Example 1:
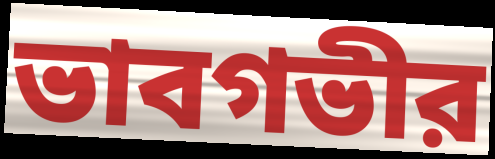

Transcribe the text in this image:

ভাবগভীর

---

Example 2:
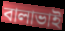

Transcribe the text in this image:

বালাভাই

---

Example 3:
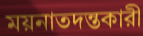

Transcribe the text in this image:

ময়নাতদন্তকারী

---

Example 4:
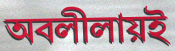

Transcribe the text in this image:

অবলীলায়ই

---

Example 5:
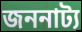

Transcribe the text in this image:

জননাট্য